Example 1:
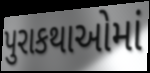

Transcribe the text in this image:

પુરાકથાઓમાં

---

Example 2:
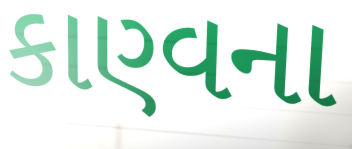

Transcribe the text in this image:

કાણ્વના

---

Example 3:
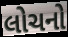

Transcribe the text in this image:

લોચનો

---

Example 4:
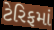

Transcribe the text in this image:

ટેરિફમાં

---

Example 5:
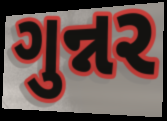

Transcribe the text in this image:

ગુન્નર